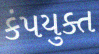
કંપયુક્ત